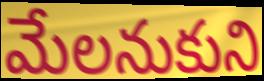
మేలనుకుని